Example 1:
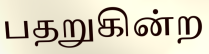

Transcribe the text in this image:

பதறுகின்ற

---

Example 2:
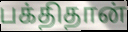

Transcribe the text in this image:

பக்திதான்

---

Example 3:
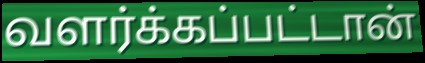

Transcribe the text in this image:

வளர்க்கப்பட்டான்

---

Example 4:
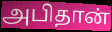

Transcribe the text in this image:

அபிதான்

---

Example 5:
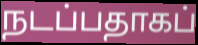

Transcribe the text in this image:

நடப்பதாகப்